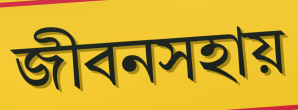
জীবনসহায়